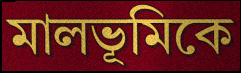
মালভূমিকে